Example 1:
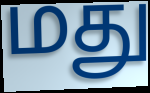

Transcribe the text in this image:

மது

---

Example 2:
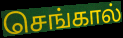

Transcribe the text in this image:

செங்கால்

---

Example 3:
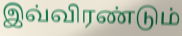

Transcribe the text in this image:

இவ்விரண்டும்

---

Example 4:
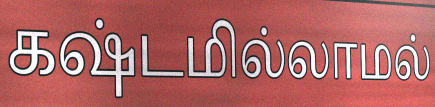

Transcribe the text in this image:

கஷ்டமில்லாமல்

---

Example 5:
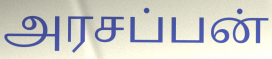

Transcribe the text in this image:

அரசப்பன்